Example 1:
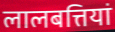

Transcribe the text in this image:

लालबत्तियां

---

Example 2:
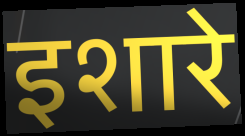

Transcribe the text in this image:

इशारे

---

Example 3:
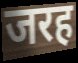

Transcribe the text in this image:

जरह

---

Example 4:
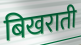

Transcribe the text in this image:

बिखराती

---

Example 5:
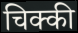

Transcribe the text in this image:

चिक्की